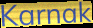
Karnak